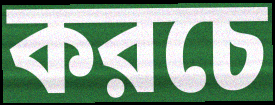
করচে